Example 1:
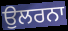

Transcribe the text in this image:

ਉਲਰਨਾ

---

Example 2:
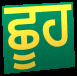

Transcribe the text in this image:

ਛੂਹ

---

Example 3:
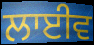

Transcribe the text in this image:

ਲਾਈਵ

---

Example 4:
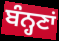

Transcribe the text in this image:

ਬੰਨ੍ਹਣਾਂ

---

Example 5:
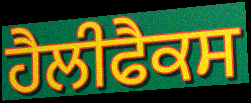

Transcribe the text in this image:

ਹੈਲੀਫੈਕਸ